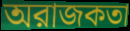
অরাজকতা